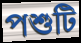
পশুটি